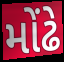
મોંઢે